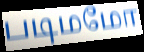
படிமமோ